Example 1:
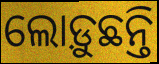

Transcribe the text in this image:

ଲୋଡ଼ୁଛନ୍ତି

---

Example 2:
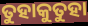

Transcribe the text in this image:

ତୁହାକୁତୁହା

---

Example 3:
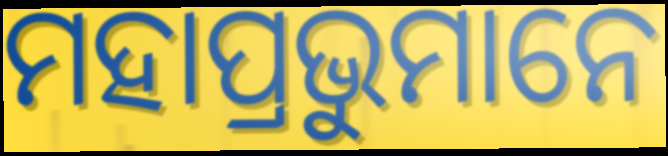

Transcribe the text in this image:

ମହାପ୍ରଭୁମାନେ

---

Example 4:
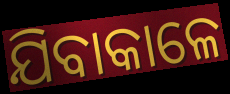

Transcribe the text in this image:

ଯିବାକାଳେ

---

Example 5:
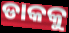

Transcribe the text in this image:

ଡାକକୁ